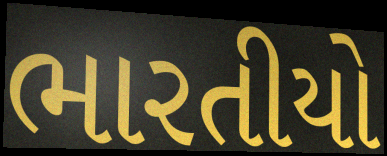
ભારતીયો